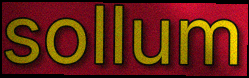
sollum